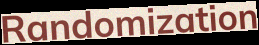
Randomization